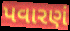
પવારણં